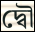
দ্বৌ